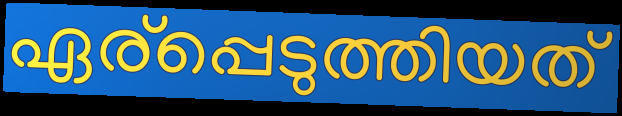
ഏര്പ്പെടുത്തിയത്